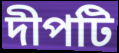
দীপটি